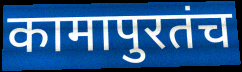
कामापुरतंच